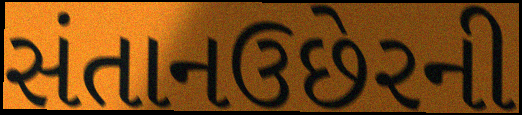
સંતાનઉછેરની